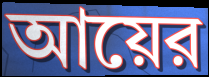
আয়ের